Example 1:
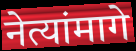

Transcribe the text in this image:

नेत्यांमागे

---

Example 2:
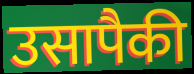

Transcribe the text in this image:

उसापैकी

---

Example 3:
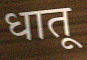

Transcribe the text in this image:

धातू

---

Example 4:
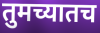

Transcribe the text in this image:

तुमच्यातच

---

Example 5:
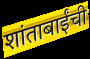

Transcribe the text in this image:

शांताबाईंची